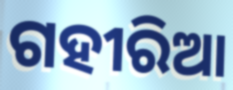
ଗହୀରିଆ